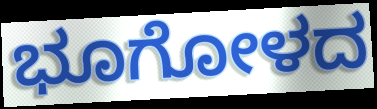
ಭೂಗೋಳದ